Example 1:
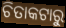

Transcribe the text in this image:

ଚିତାକଟାରୁ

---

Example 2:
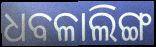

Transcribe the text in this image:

ଧବଳାଲିଙ୍ଗ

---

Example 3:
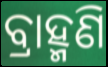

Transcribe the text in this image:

ବ୍ରାହ୍ମଣି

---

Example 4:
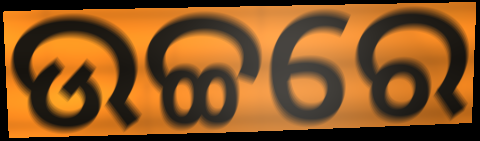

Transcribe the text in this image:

ଉଚ୍ଚରେ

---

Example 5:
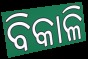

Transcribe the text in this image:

ବିକାଳି